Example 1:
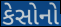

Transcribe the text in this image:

કેસોનો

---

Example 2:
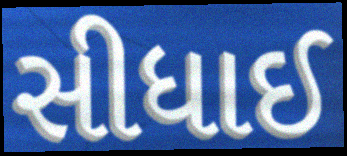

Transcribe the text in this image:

સીધાઈ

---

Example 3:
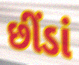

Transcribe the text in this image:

છીંડાં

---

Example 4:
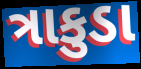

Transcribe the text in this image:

ત્રાકુડા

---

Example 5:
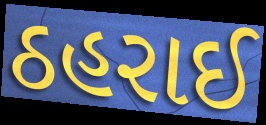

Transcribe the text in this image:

ઠહરાઈ